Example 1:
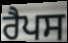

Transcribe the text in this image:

ਰੈਪਸ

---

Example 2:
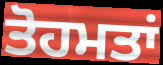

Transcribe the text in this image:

ਤੋਹਮਤਾਂ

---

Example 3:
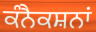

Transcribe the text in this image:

ਕੰਨੈਕਸ਼ਨਾਂ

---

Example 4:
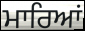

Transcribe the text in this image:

ਮਾਰਿਆਂ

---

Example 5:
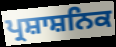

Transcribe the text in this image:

ਪ੍ਰਸ਼ਾਸ਼ਨਿਕ